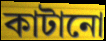
কাটানো